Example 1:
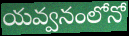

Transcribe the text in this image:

యవ్వనంలోనో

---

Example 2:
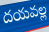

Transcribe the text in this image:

దయవల్ల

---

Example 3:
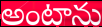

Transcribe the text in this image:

అంటాను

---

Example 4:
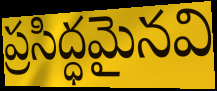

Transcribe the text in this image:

ప్రసిద్ధమైనవి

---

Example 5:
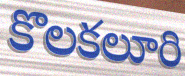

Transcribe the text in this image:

కొలకలూరి